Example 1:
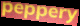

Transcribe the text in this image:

peppery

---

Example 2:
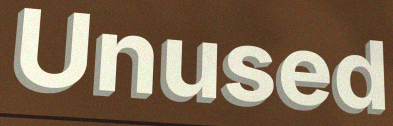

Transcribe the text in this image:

Unused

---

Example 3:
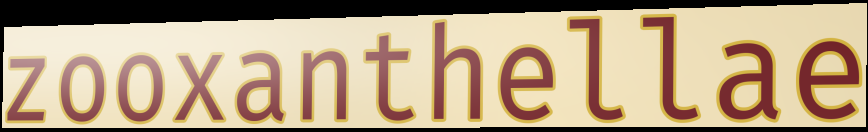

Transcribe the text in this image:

zooxanthellae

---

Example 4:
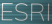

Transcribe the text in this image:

ESRI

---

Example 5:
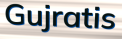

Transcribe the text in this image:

Gujratis